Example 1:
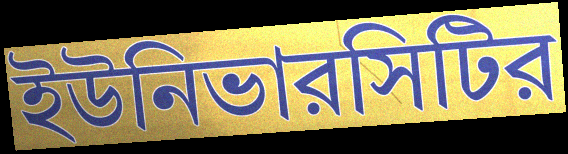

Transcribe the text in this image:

ইউনিভারসিটির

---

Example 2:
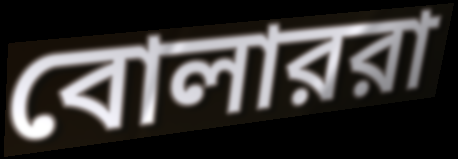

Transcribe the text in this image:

বোলাররা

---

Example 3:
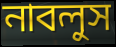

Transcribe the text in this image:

নাবলুস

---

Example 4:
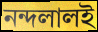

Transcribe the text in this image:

নন্দলালই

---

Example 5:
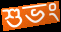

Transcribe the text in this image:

শুভং